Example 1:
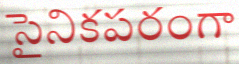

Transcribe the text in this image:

సైనికపరంగా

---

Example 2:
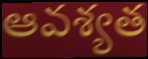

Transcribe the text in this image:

ఆవశ్యత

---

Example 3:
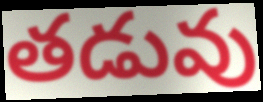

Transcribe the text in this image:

తడువు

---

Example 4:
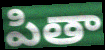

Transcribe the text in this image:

పితా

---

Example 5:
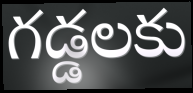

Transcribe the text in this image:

గడ్డలకు